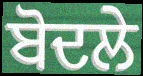
ਬੋਦਲੇ